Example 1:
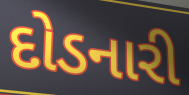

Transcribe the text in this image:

દોડનારી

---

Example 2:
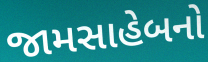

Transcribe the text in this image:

જામસાહેબનો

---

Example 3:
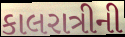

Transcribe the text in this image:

કાલરાત્રીની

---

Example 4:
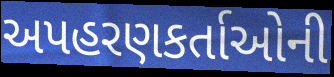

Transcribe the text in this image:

અપહરણકર્તાઓની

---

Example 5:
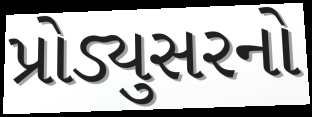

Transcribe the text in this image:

પ્રોડ્યુસરનો